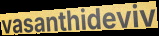
vasanthideviv